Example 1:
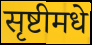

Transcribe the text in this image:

सृष्टीमधे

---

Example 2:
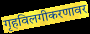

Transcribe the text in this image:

गृहविलगीकरणावर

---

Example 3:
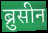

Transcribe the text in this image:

ब्रुसीन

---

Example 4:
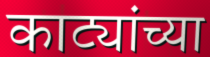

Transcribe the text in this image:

काट्यांच्या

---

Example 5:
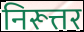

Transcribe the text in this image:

निरूत्तर